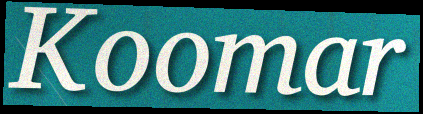
Koomar